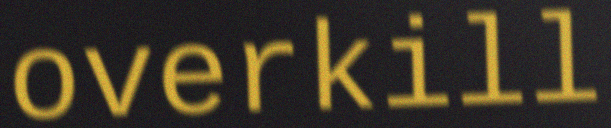
overkill